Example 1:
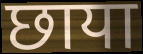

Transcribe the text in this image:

छाया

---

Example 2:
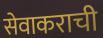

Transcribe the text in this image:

सेवाकराची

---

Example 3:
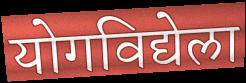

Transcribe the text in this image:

योगविद्येला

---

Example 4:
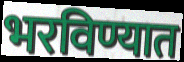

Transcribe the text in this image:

भरविण्यात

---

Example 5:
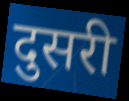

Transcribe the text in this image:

दुसरी